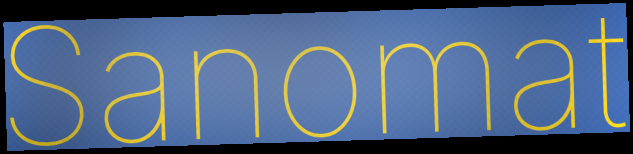
Sanomat